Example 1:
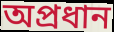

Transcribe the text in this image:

অপ্ৰধান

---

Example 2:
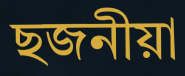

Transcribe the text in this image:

ছজনীয়া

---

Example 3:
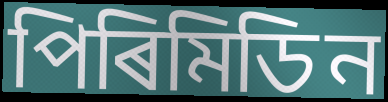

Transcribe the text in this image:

পিৰিমিডিন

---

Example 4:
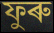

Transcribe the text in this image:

ফুৰু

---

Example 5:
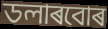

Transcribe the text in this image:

ডলাৰবোৰ